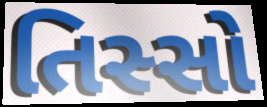
તિસ્સો